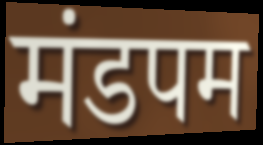
मंडपम